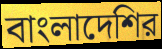
বাংলাদেশির